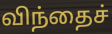
விந்தைச்